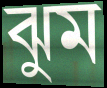
ঝুম